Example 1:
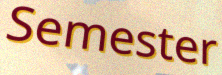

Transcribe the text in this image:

Semester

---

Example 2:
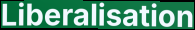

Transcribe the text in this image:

Liberalisation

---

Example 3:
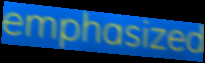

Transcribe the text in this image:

emphasized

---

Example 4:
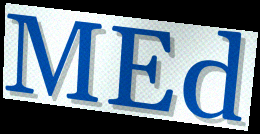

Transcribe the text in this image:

MEd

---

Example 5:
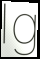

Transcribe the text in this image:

lg